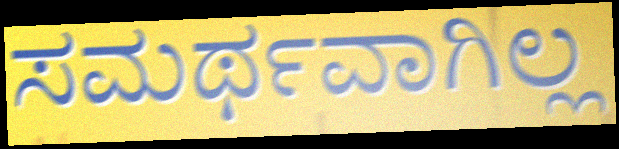
ಸಮರ್ಥವಾಗಿಲ್ಲ